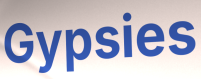
Gypsies